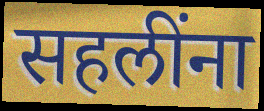
सहलींना